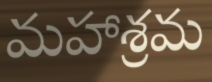
మహాశ్రమ